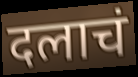
दलाचं